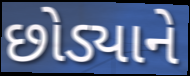
છોડ્યાને